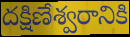
దక్షిణేశ్వరానికి